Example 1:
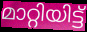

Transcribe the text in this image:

മാറ്റിയിട്ട്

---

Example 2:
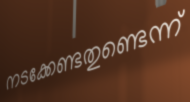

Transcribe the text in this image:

നടക്കേണ്ടതുണ്ടെന്ന്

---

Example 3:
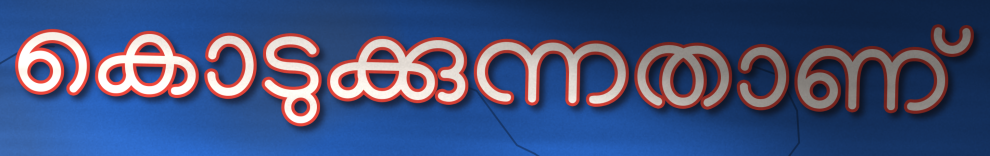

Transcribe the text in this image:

കൊടുക്കുന്നതാണ്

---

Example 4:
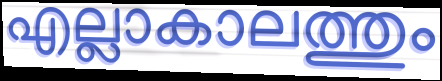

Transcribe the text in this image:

എല്ലാകാലത്തും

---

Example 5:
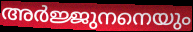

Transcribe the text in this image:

അർജ്ജുനനെയും